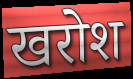
खरोश